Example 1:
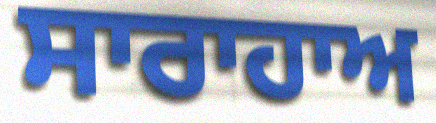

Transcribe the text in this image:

ਸਾਰਾਹਾਅ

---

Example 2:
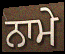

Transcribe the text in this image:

ਨਾਮੇ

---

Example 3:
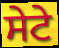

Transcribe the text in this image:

ਸੇਟੇ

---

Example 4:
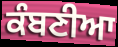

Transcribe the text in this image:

ਕੰਬਣੀਆ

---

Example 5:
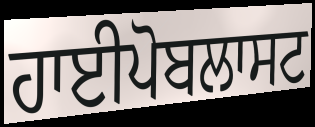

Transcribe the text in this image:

ਹਾਈਪੋਬਲਾਸਟ